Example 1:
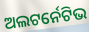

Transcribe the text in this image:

ଅଲଟର୍ନେଟିଭ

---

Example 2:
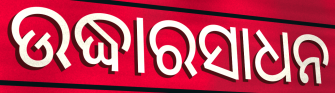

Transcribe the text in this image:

ଉଦ୍ଧାରସାଧନ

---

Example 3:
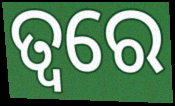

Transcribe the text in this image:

ତ୍ଵରେ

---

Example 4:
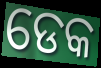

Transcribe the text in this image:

ଡେକ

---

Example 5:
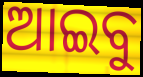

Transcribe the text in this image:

ଆଇବୁ